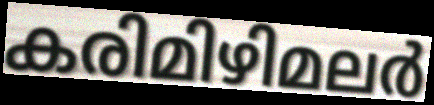
കരിമിഴിമലർ